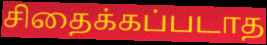
சிதைக்கப்படாத